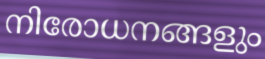
നിരോധനങ്ങളും